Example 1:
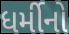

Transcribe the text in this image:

ધર્મીનો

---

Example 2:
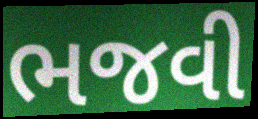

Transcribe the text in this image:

ભજવી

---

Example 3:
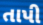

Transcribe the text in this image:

તાપી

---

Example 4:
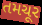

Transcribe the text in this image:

તમચૂર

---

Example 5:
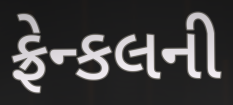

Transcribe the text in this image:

ફ્રેન્કલની